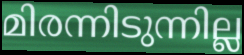
മിരന്നിടുന്നില്ല